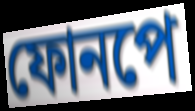
ফোনপে